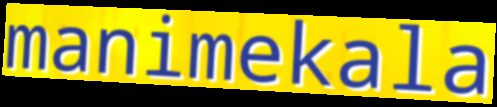
manimekala